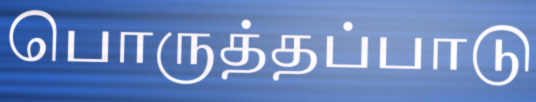
பொருத்தப்பாடு